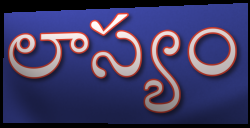
లాస్యం